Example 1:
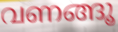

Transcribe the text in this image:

വണങ്ങൂ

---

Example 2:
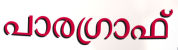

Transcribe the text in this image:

പാരഗ്രാഫ്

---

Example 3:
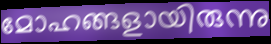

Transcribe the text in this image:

മോഹങ്ങളായിരുന്നു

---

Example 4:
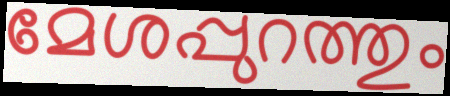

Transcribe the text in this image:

മേശപ്പുറത്തും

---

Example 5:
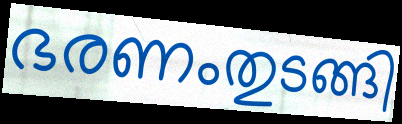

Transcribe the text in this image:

ഭരണംതുടങ്ങി